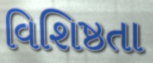
વિશિષ્ઠતા